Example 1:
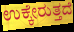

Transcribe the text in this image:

ಉಕ್ಕೇರುತ್ತದೆ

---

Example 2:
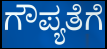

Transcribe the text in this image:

ಗೌಪ್ಯತೆಗೆ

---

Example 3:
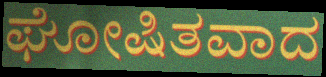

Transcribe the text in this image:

ಘೋಷಿತವಾದ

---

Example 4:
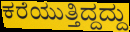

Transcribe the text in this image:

ಕರೆಯುತ್ತಿದ್ದದ್ದು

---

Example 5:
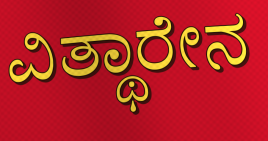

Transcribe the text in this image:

ವಿತ್ಥಾರೇನ